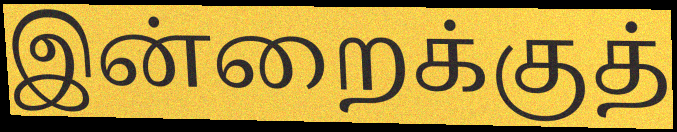
இன்றைக்குத்